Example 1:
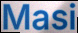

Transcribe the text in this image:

Masi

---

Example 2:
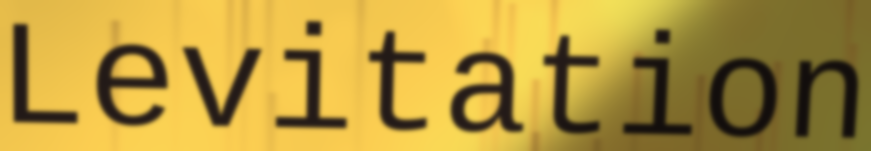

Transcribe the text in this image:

Levitation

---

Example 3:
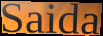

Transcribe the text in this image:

Saida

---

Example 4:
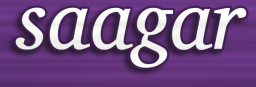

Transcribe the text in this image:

saagar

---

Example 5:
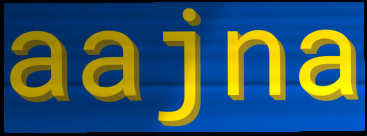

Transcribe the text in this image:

aajna